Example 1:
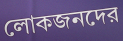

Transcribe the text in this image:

লোকজনদের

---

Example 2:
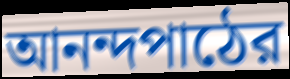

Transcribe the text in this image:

আনন্দপাঠের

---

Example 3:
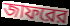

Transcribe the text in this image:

জাফরের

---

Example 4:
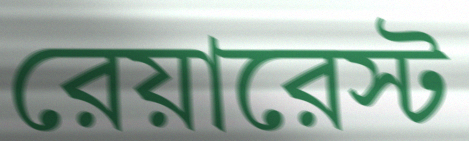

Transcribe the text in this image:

রেয়ারেস্ট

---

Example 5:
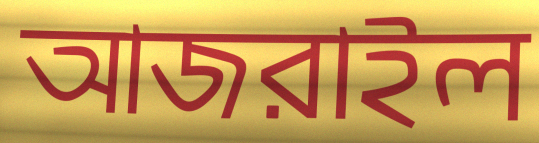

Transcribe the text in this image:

আজরাইল